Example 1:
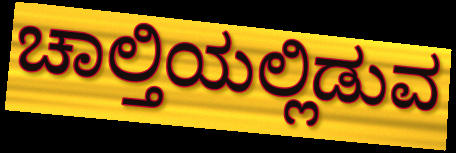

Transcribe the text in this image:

ಚಾಲ್ತಿಯಲ್ಲಿಡುವ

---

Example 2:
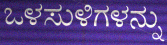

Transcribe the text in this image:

ಒಳಸುಳಿಗಳನ್ನು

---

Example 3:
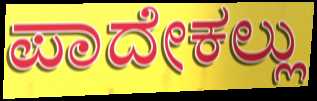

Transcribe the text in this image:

ಪಾದೇಕಲ್ಲು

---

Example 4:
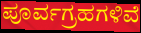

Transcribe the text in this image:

ಪೂರ್ವಗ್ರಹಗಳಿವೆ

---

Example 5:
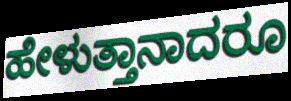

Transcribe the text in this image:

ಹೇಳುತ್ತಾನಾದರೂ